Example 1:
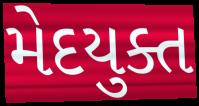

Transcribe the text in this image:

મેદયુક્ત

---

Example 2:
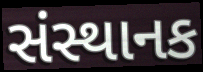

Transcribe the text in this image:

સંસ્થાનક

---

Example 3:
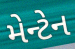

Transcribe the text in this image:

મેન્ટેન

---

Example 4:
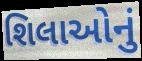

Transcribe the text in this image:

શિલાઓનું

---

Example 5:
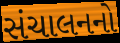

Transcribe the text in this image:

સંચાલનનો